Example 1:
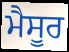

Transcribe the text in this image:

ਮੈਸੂਰ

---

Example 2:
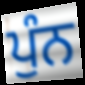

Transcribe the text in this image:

ਪੁੰਨ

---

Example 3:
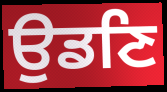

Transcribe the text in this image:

ਉਡਣਿ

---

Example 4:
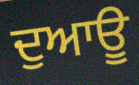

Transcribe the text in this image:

ਦੁਆਊ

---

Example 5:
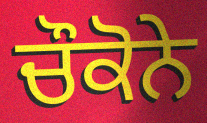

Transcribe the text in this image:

ਚੌਕੋਨੇ